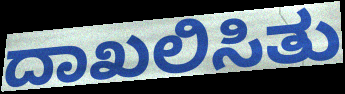
ದಾಖಲಿಸಿತು